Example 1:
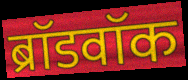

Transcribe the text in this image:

ब्रॉडवॉक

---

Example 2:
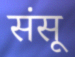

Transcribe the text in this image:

संसू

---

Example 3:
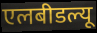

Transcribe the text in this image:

एलबीडल्यू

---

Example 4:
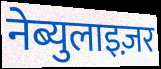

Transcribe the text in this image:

नेब्युलाइज़र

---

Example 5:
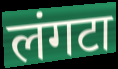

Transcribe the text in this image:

लंगटा